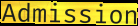
Admission